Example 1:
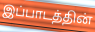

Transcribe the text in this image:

இப்பாடத்தின்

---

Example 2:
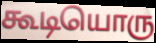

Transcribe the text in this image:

கூடியொரு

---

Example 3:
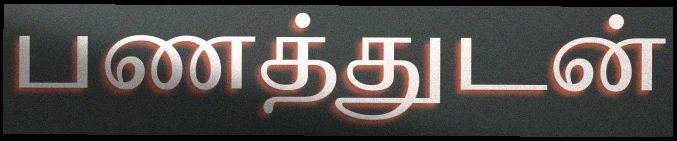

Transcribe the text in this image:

பணத்துடன்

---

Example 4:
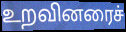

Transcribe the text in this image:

உறவினரைச்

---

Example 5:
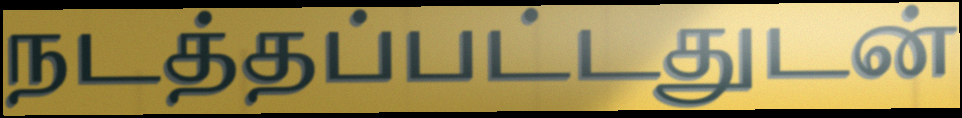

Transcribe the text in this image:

நடத்தப்பட்டதுடன்